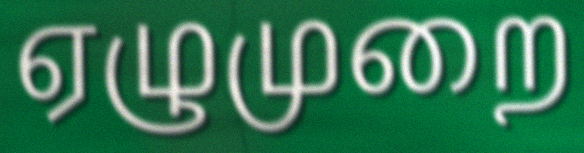
ஏழுமுறை